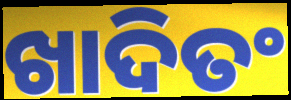
ଖାଦିତଂ